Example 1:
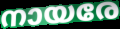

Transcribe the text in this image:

നായരേ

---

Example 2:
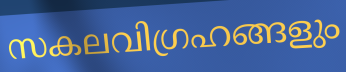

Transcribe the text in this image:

സകലവിഗ്രഹങ്ങളും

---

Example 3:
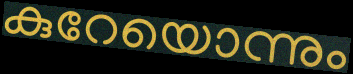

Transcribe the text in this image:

കുറേയൊന്നും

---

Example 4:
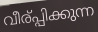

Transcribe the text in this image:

വീര്പ്പിക്കുന്ന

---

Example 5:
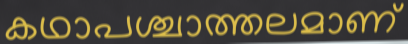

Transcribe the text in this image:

കഥാപശ്ചാത്തലമാണ്